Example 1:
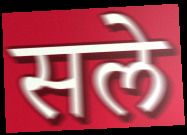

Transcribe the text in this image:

सले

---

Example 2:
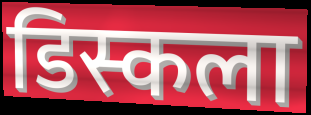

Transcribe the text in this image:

डिस्कला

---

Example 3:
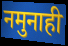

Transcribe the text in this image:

नमुनाही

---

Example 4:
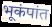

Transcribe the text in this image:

भूकंपांत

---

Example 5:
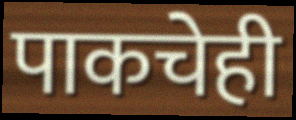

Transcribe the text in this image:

पाकचेही